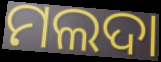
ମଲଦା